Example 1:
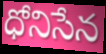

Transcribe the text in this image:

ధోనిసేన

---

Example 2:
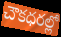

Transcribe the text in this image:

చౌకధరల్లో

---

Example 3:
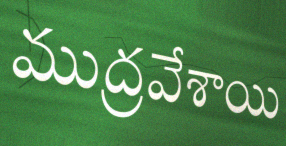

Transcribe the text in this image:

ముద్రవేశాయి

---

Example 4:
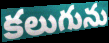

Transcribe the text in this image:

కలుగును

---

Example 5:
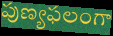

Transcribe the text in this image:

పుణ్యఫలంగా